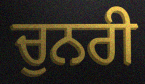
ਚੁਨਰੀ